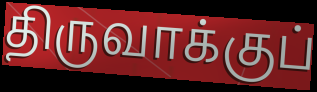
திருவாக்குப்